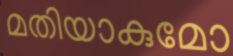
മതിയാകുമോ